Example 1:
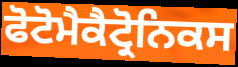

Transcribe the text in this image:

ਫੋਟੋਮੈਕੈਟ੍ਰੋਨਿਕਸ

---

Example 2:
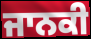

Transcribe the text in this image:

ਜਾਨਕੀ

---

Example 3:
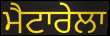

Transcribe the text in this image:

ਮੈਟਾਰੇਲਾ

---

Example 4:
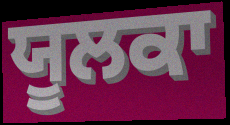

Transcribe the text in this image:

ਯੂਲਕਾ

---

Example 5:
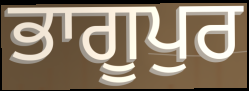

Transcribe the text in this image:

ਭਾਗੂਪੁਰ